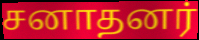
சனாதனர்